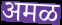
अमळ